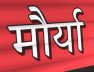
मौर्या